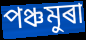
পঞ্চমুৰা